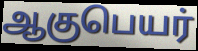
ஆகுபெயர்